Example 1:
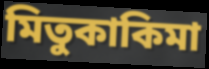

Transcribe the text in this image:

মিতুকাকিমা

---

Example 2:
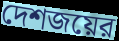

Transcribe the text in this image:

দেশজয়ের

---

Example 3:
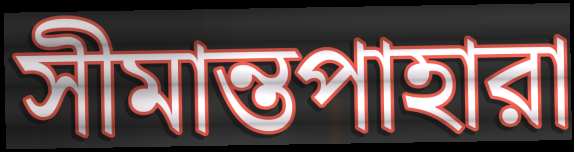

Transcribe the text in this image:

সীমান্তপাহারা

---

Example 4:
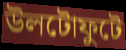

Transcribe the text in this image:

উলটোফুটে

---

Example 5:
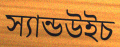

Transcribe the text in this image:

স্যান্ডউইচ